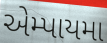
એમ્પાયમા